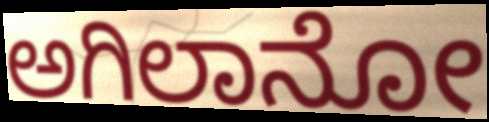
ಅಗಿಲಾನೋ